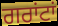
ਗਰਾਂਟਾਂ